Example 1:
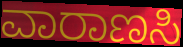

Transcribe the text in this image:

ವಾರಾಣಸಿ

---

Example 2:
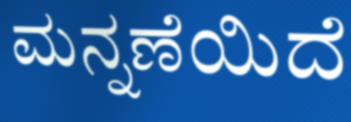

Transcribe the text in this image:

ಮನ್ನಣೆಯಿದೆ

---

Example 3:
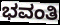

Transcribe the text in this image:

ಭವಂತಿ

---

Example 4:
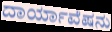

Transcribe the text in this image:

ದಾರ್ಯಾವೆಷನು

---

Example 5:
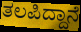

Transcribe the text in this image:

ತಲಪಿದ್ದಾನೆ